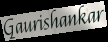
Gaurishankar